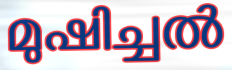
മുഷിച്ചൽ